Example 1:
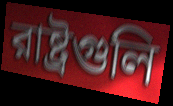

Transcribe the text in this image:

রাষ্ট্রগুলি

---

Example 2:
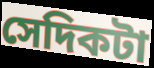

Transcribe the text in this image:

সেদিকটা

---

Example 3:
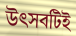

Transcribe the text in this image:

উৎসবটিই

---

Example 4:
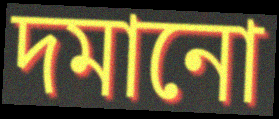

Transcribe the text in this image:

দমানো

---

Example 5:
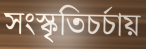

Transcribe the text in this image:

সংস্কৃতিচর্চায়